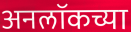
अनलॉकच्या